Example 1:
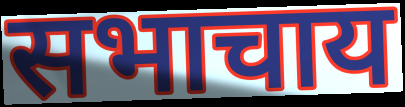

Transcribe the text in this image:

सभाचाय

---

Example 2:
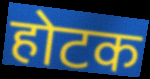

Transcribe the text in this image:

होटक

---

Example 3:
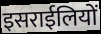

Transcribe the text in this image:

इसराईलियों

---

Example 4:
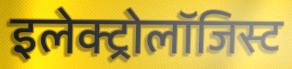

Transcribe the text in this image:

इलेक्ट्रोलॉजिस्ट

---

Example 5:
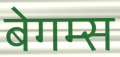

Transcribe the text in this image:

बेगम्स